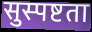
सुस्पष्टता